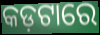
କଡ଼ଟାରେ